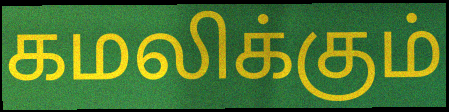
கமலிக்கும்